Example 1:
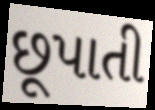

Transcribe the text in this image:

છૂપાતી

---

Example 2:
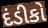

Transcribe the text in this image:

દંડીકો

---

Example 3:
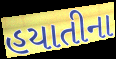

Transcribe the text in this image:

હયાતીના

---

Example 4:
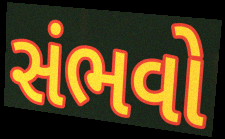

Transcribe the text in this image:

સંભવો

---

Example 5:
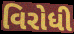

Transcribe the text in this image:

વિરોધી